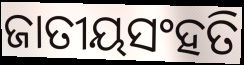
ଜାତୀୟସଂହତି